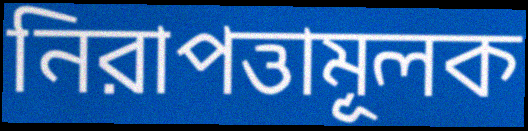
নিরাপত্তামূলক